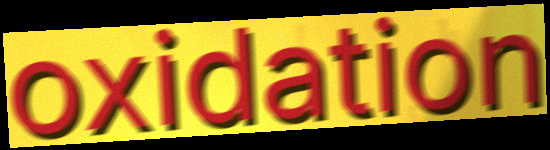
oxidation